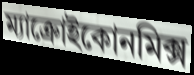
ম্যাক্রোইকোনমিক্স